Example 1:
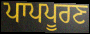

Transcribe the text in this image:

ਪਾਪਪੂਰਣ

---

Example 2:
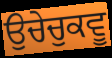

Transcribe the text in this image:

ਉਚੇਚੁਕਵੂ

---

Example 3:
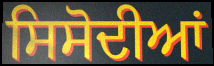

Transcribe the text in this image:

ਸਿਸੋਦੀਆਂ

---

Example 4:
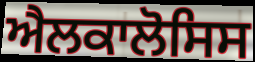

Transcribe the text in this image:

ਐਲਕਾਲੋਸਿਸ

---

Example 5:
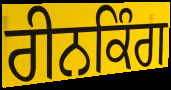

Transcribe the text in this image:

ਰੀਨਕਿੰਗ